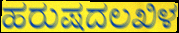
ಹರುಷದಲಖಿಳ